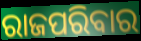
ରାଜପରିବାର